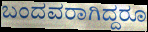
ಬಂದವರಾಗಿದ್ದರೂ